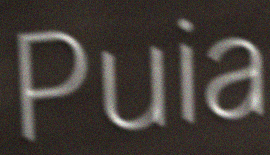
Puia